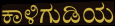
ಕಾಳಿಗುಡಿಯ